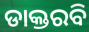
ଡାକ୍ତରବି